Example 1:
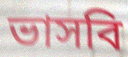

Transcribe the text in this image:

ভাসবি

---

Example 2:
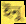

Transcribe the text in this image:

ইনু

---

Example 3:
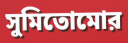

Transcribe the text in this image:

সুমিতোমোর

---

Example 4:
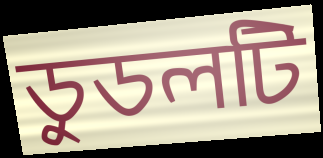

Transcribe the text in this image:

ডুডলটি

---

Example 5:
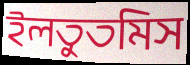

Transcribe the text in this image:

ইলতুতমিস